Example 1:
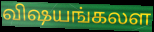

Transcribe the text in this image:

விஷயங்கலள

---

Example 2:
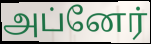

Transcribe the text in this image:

அப்னேர்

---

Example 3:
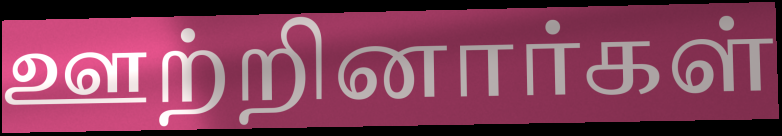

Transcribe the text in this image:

ஊற்றினார்கள்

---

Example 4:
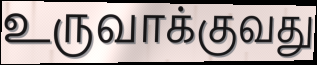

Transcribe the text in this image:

உருவாக்குவது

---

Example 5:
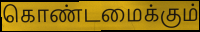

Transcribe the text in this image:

கொண்டமைக்கும்